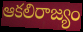
ఆకలిరాజ్యం